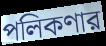
পলিকণার